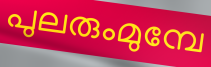
പുലരുംമുമ്പേ